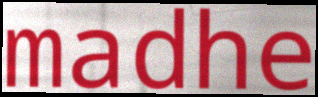
madhe